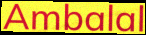
Ambalal